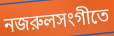
নজরুলসংগীতে